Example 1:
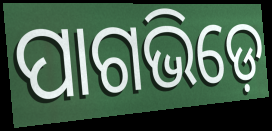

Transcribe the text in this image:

ପାଗଭିଡ଼େ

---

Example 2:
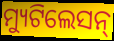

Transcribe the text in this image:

ମ୍ୟୁଟିଲେସନ୍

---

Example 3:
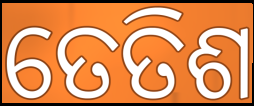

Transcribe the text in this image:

ତେତିଶ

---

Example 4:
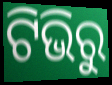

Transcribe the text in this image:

ଟିଭିରୁ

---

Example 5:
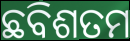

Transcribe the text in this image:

ଛବିଶତମ